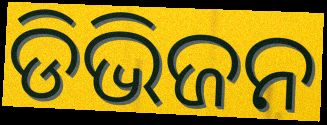
ଡିଭିଜନ